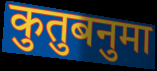
कुतुबनुमा